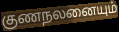
குணநலனையும்